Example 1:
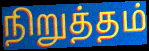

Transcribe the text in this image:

நிறுத்தம்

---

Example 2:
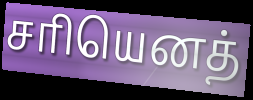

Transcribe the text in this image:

சரியெனத்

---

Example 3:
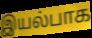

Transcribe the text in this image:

இயல்பாக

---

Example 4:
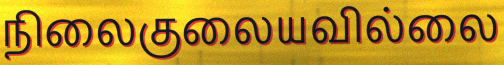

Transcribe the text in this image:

நிலைகுலையவில்லை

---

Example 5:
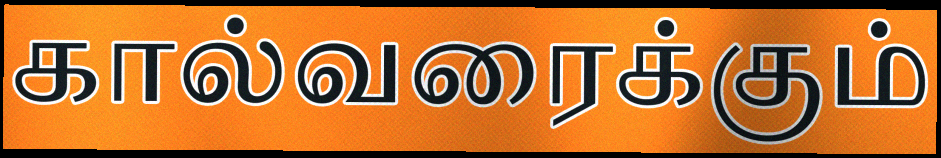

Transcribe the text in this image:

கால்வரைக்கும்